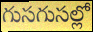
గుసగుసల్లో